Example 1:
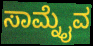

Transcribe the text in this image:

ಸಾಮ್ನೈವ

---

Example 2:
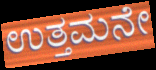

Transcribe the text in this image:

ಉತ್ತಮನೇ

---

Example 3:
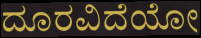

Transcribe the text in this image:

ದೂರವಿದೆಯೋ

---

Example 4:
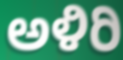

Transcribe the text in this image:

ಅಳಿರಿ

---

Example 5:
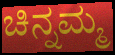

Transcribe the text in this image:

ಚಿನ್ನಮ್ಮ